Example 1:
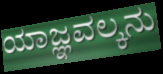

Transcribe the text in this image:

ಯಾಜ್ಞವಲ್ಕನು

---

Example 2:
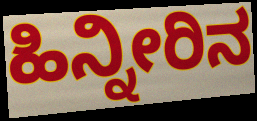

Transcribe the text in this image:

ಹಿನ್ನೀರಿನ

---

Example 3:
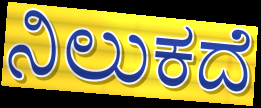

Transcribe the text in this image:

ನಿಲುಕದೆ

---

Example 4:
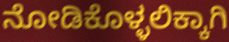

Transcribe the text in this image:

ನೋಡಿಕೊಳ್ಳಲಿಕ್ಕಾಗಿ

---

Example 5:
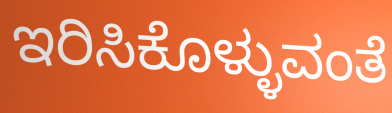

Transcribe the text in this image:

ಇರಿಸಿಕೊಳ್ಳುವಂತೆ